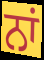
ਨਾਂ